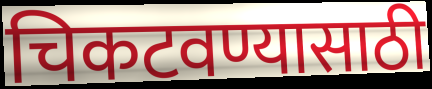
चिकटवण्यासाठी